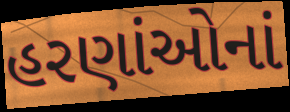
હરણાંઓનાં